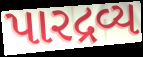
પારદ્રવ્ય